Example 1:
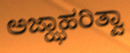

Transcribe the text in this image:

ಅಜ್ಝಾಹರಿತ್ವಾ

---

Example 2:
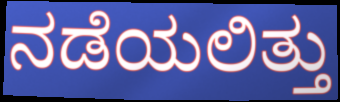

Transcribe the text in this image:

ನಡೆಯಲಿತ್ತು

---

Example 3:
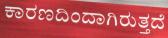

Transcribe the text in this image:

ಕಾರಣದಿಂದಾಗಿರುತ್ತದೆ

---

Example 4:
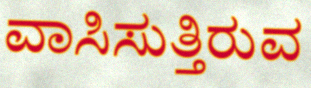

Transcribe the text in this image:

ವಾಸಿಸುತ್ತಿರುವ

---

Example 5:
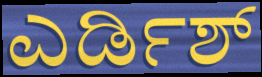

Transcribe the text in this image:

ಎರ್ಡಿಶ್